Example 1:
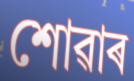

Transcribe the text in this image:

শোৱাৰ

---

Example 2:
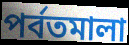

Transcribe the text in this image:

পৰ্বতমালা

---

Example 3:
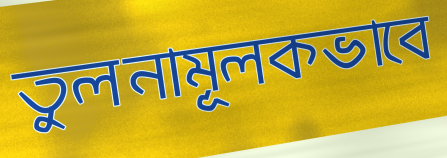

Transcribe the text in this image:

তুলনামূলকভাবে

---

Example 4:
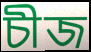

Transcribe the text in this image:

চীজ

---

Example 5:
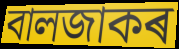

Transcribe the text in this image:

বালজাকৰ